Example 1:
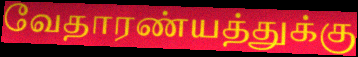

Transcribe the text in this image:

வேதாரண்யத்துக்கு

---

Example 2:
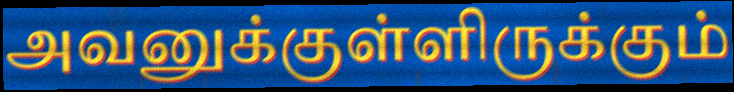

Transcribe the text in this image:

அவனுக்குள்ளிருக்கும்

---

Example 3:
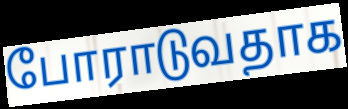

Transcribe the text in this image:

போராடுவதாக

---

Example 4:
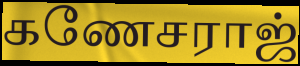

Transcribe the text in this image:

கணேசராஜ்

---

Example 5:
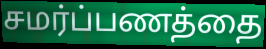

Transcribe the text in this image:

சமர்ப்பணத்தை